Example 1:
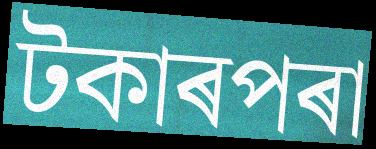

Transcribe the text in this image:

টকাৰপৰা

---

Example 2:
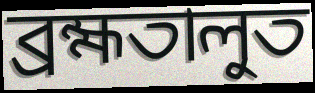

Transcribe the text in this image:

ব্ৰহ্মতালুত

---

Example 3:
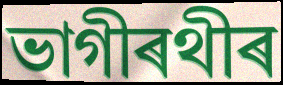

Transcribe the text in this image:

ভাগীৰথীৰ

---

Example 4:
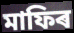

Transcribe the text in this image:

মাফিৰ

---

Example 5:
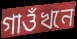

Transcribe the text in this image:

গাওঁখনে